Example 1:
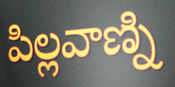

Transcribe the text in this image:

పిల్లవాణ్ని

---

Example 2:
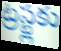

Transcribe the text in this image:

ట్రస్ట్లకు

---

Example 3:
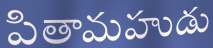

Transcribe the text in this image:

పితామహుడు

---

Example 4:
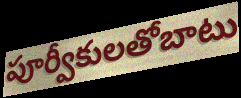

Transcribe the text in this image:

పూర్వీకులతోబాటు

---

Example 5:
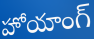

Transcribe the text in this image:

హోయాంగ్